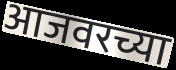
आजवरच्या